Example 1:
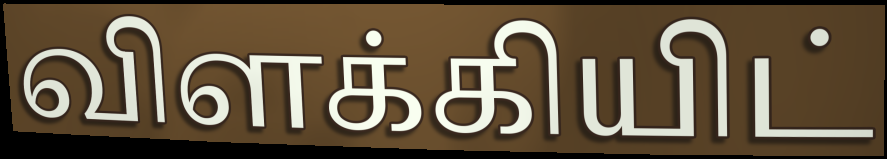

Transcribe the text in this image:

விளக்கியிட்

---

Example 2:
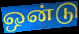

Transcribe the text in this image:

ஒன்டு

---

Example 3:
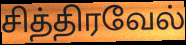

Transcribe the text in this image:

சித்திரவேல்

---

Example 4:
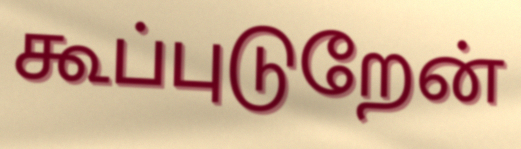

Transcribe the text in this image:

கூப்புடுறேன்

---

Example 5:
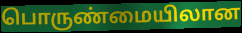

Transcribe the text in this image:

பொருண்மையிலான